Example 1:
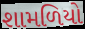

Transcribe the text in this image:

શામળિયો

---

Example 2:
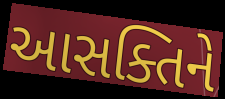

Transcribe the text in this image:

આસક્તિને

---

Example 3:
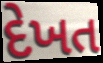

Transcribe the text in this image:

દેખત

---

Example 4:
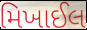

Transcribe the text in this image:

મિખાઈલ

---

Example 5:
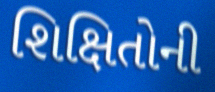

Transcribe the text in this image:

શિક્ષિતોની